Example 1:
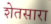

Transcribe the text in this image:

शेतसारा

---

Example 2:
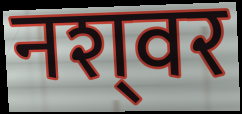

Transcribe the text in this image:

नश्वर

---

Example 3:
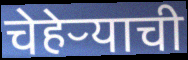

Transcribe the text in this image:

चेहेऱ्याची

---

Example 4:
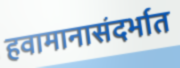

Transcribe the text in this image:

हवामानासंदर्भात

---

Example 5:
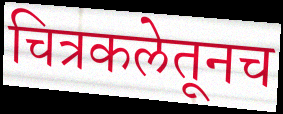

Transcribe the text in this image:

चित्रकलेतूनच